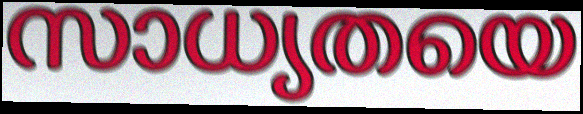
സാധ്യതയെ